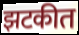
झटकीत